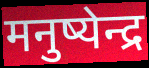
मनुष्येन्द्र